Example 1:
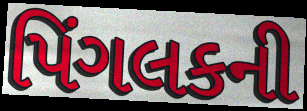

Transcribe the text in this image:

પિંગલકની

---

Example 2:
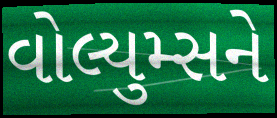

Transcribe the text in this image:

વોલ્યુમ્સને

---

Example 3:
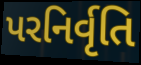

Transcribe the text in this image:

પરનિર્વૃતિ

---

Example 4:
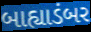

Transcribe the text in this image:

બાહ્યાડંબર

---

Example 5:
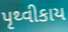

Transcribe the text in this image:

પૃથ્વીકાય